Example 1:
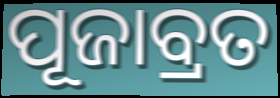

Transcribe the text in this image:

ପୂଜାବ୍ରତ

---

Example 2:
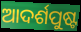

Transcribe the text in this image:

ଆଦର୍ଶପୁଷ୍ଟ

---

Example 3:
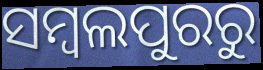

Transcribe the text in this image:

ସମ୍ବଲପୁରରୁ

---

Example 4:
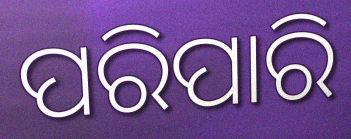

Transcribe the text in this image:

ପରିପାରି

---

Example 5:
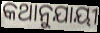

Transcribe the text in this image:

କଥାନୁଯାୟୀ